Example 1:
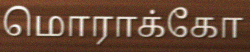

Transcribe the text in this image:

மொராக்கோ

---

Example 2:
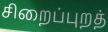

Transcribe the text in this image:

சிறைப்புறத்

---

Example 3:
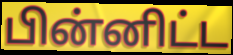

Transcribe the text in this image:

பின்னிட்ட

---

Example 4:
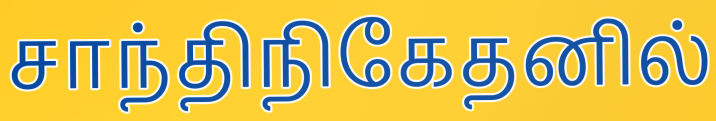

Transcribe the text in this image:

சாந்திநிகேதனில்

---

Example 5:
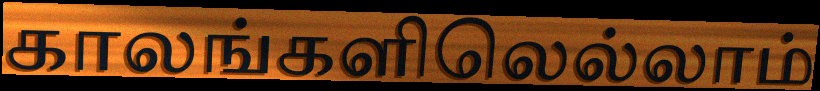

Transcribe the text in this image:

காலங்களிலெல்லாம்